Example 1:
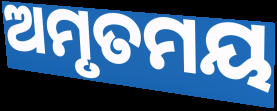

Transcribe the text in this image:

ଅମୃତମୟ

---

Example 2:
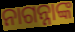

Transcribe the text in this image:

ନାଗନ୍ନାଙ୍କ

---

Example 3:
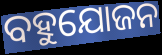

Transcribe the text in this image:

ବହୁଯୋଜନ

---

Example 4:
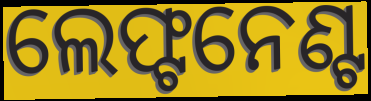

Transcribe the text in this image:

ଲେଫ୍ଟନେଣ୍ଟ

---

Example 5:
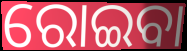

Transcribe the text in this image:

ରୋଇବା